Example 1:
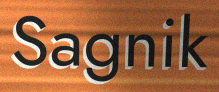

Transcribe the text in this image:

Sagnik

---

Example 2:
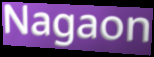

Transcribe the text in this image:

Nagaon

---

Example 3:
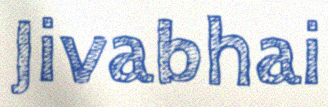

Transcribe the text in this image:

Jivabhai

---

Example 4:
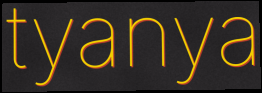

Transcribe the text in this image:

tyanya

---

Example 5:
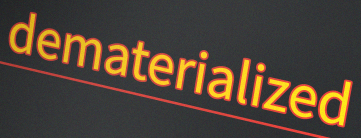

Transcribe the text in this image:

dematerialized